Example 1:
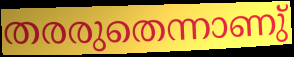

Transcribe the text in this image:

തരരുതെന്നാണു്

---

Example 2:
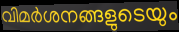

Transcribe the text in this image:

വിമർശനങ്ങളുടെയും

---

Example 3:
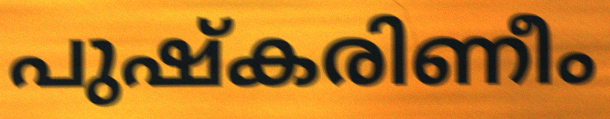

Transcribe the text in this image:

പുഷ്കരിണീം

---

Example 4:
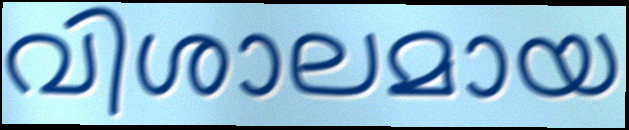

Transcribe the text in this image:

വിശാലമായ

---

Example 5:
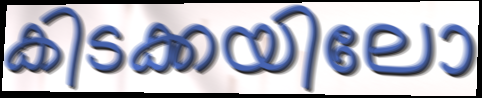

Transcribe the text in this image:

കിടക്കയിലോ